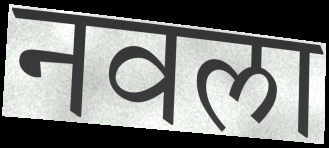
नवला